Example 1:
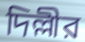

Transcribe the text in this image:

দিল্লীর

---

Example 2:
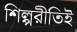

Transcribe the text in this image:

শিল্পরীতিই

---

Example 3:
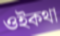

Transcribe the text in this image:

ওইকথা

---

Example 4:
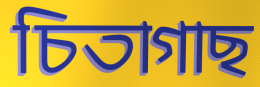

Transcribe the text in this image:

চিতাগাছ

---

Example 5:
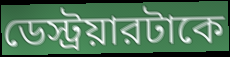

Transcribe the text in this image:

ডেস্ট্রয়ারটাকে